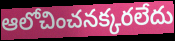
ఆలోచించనక్కరలేదు